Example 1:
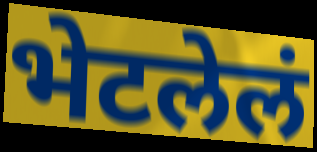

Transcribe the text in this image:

भेटलेलं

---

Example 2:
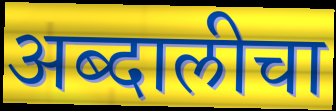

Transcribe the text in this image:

अब्दालीचा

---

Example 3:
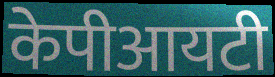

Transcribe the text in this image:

केपीआयटी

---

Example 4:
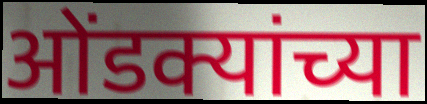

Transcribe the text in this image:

ओंडक्यांच्या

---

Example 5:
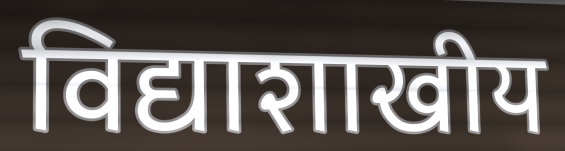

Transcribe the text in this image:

विद्याशाखीय